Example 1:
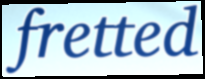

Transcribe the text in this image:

fretted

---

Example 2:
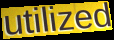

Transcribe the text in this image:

utilized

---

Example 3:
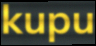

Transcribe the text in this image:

kupu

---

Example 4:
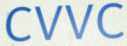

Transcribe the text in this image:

CVVC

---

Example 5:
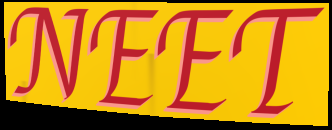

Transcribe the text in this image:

NEET